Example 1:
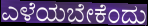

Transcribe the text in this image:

ಎಳೆಯಬೇಕೆಂದು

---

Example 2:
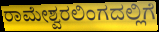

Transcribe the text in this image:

ರಾಮೇಶ್ವರಲಿಂಗದಲ್ಲಿಗೆ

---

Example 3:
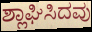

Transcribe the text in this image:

ಶ್ಲಾಘಿಸಿದವು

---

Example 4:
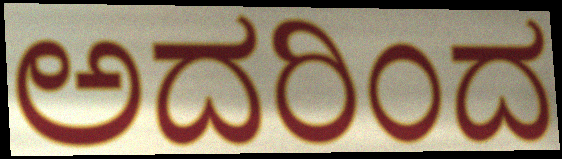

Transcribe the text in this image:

ಅದರಿಂದ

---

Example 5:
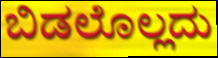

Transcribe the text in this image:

ಬಿಡಲೊಲ್ಲದು